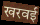
खरवई